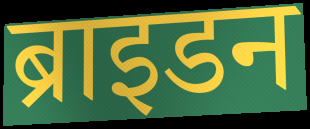
ब्राइडन